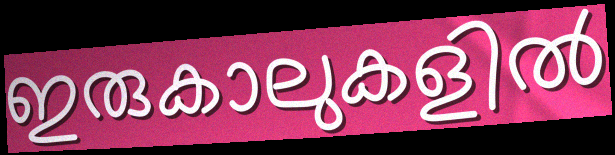
ഇരുകാലുകളിൽ